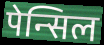
पेन्सिल